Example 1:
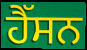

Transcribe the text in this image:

ਹੈੱਸਨ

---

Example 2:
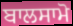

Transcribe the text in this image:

ਬਾਲਸਾਮੋ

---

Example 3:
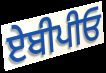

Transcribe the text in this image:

ਏਬੀਪੀਓ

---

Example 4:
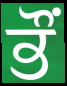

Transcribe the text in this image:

ਭੌਂ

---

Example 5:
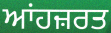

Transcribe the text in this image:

ਆਂਹਜ਼ਰਤ